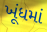
ખૂંધમાં